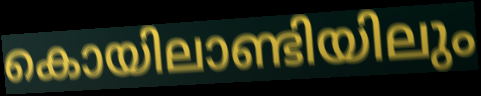
കൊയിലാണ്ടിയിലും